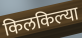
किलकिल्या